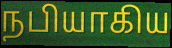
நபியாகிய